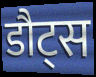
डौट्स